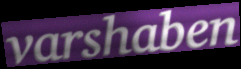
varshaben